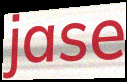
jase